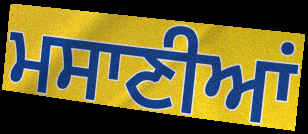
ਮਸਾਣੀਆਂ